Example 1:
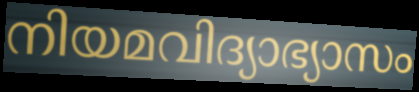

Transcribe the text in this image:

നിയമവിദ്യാഭ്യാസം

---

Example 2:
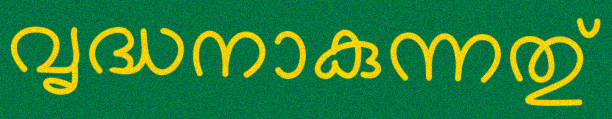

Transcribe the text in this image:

വൃദ്ധനാകുന്നതു്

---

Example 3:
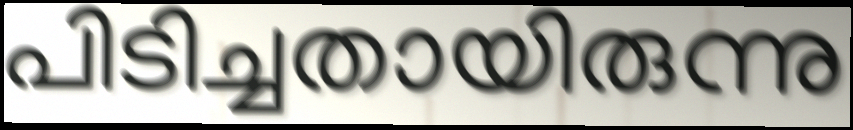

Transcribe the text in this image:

പിടിച്ചതായിരുന്നു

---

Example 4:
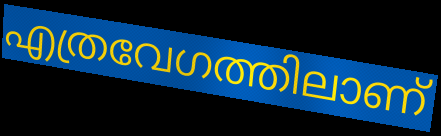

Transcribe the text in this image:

എത്രവേഗത്തിലാണ്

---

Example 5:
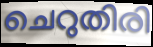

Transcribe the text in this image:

ചെറുതിരി